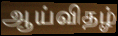
ஆய்விதழ்